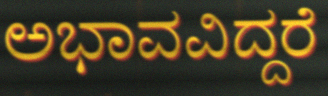
ಅಭಾವವಿದ್ದರೆ